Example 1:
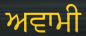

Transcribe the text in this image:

ਅਵਾਮੀ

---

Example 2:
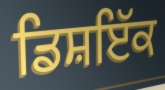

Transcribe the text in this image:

ਡਿਸ਼ਇੱਕ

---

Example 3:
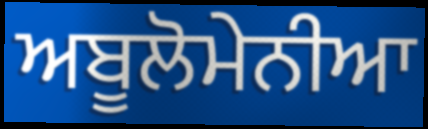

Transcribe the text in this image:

ਅਬੂਲੋਮੇਨੀਆ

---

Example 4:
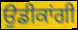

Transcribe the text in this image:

ਉਡੀਕਾਂਗੀ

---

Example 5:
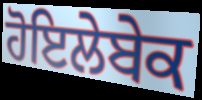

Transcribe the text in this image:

ਹੋਇਲੇਬੇਕ